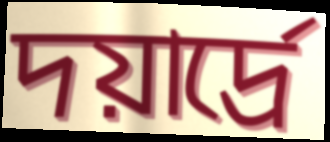
দয়ার্দ্রে